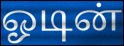
ஓடின்